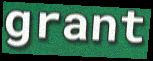
grant